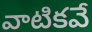
వాటికవే